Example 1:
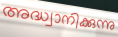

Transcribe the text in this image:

അദ്ധ്വാനിക്കുന്നു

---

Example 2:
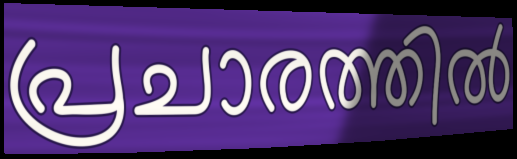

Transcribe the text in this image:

പ്രചാരത്തിൽ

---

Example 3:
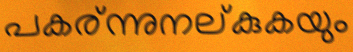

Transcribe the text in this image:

പകര്ന്നുനല്കുകയും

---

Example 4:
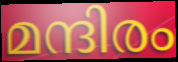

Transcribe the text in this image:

മന്ദിരം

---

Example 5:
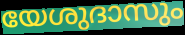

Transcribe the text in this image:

യേശുദാസും